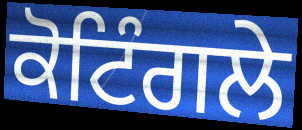
ਕੋਟਿੰਗਲੇ